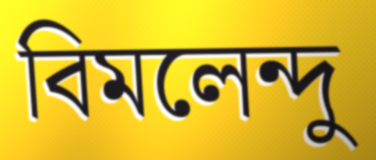
বিমলেন্দু